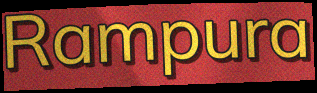
Rampura